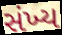
સંખ્ય